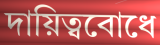
দায়িত্ববোধে